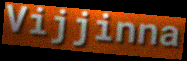
Vijjinna